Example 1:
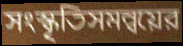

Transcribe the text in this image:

সংস্কৃতিসমন্বয়ের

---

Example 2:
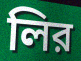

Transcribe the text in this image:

লির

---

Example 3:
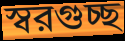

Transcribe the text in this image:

স্বরগুচ্ছ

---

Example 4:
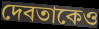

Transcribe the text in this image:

দেবতাকেও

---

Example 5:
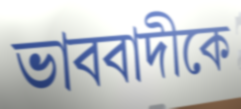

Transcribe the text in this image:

ভাববাদীকে